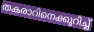
തകരാറിനെക്കുറിച്ച്